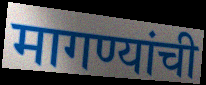
मागण्यांची